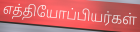
எத்தியோப்பியர்கள்